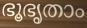
ഭൂഭൃതാം